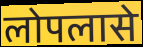
लोपलासे